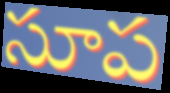
సూప